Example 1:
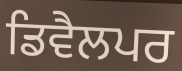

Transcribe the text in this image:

ਡਿਵੈਲਪਰ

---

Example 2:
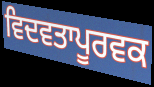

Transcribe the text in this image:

ਵਿਦਵਤਾਪੂਰਵਕ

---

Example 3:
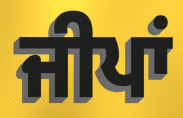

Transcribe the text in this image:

ਜੀਪਾਂ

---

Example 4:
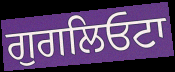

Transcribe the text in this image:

ਗੁਗਲਿਓਟਾ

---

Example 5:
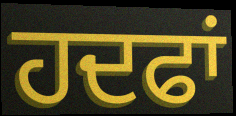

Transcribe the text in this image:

ਹਦਫਾਂ